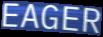
EAGER